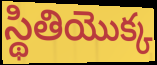
స్థితియొక్క